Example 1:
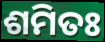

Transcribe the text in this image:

ଶମିତଃ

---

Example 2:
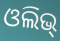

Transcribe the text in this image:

ଓଲିଭ୍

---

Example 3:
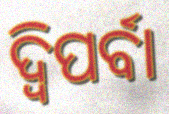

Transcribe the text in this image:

ଦ୍ଵିପର୍ବା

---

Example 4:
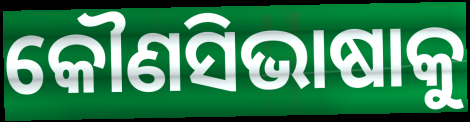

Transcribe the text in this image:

କୌଣସିଭାଷାକୁ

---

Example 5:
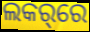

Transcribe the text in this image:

ଲକର୍‌ରେ